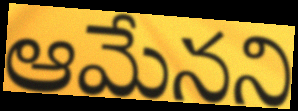
ఆమేనని